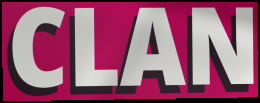
CLAN